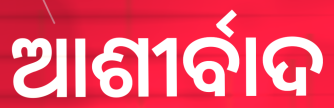
ଆଶୀର୍ବାଦ